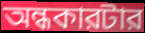
অন্ধকারটার